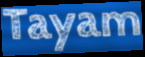
Tayam